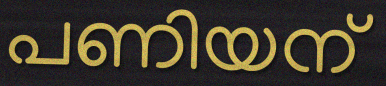
പണിയന്